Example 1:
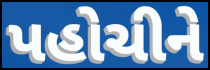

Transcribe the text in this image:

પહોચીને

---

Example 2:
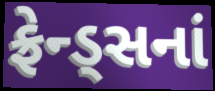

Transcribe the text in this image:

ફ્રેન્ડ્સનાં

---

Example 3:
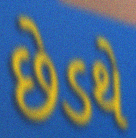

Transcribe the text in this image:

છેડથે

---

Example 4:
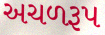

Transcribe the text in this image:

અચળરૂપ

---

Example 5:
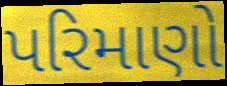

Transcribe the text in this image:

પરિમાણો